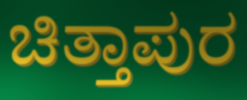
ಚಿತ್ತಾಪುರ